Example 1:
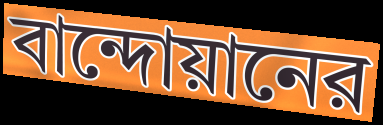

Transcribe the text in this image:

বান্দোয়ানের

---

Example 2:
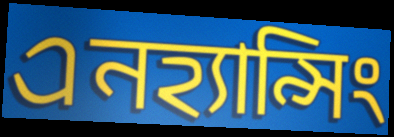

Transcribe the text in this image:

এনহ্যান্সিং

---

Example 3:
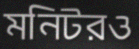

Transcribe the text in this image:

মনিটরও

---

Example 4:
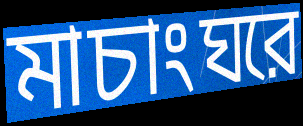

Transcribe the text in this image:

মাচাংঘরে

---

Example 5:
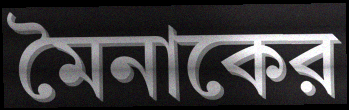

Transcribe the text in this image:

মৈনাকের